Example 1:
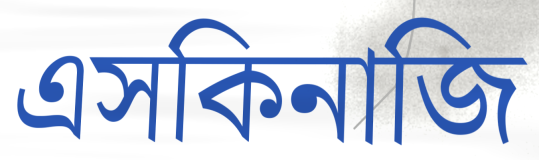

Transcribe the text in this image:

এসকিনাজি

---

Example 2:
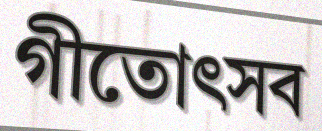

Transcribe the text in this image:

গীতোৎসব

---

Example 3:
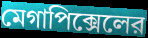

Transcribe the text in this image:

মেগাপিক্সেলের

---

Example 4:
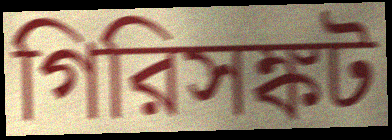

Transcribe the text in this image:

গিরিসঙ্কট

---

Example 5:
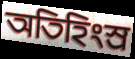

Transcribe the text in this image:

অতিহিংস্র